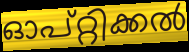
ഓപ്റ്റിക്കൽ